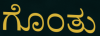
ಗೊಂತು